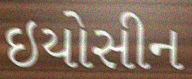
ઇયોસીન